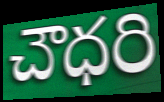
చౌధరి